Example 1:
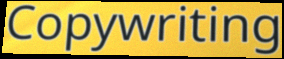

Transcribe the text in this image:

Copywriting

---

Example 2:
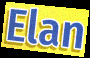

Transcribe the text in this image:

Elan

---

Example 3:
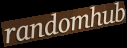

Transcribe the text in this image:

randomhub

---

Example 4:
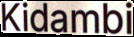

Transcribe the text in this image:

Kidambi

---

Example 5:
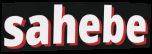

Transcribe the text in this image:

sahebe